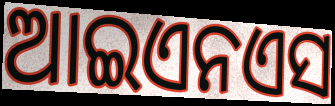
ଆଇଏନଏସ